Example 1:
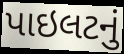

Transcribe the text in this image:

પાઇલટનું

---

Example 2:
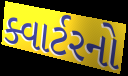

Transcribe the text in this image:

ક્વાર્ટરનો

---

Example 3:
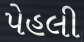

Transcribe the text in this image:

પેહલી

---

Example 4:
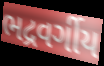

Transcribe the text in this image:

ભદ્રવર્ગીય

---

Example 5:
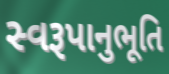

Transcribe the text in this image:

સ્વરૂપાનુભૂતિ